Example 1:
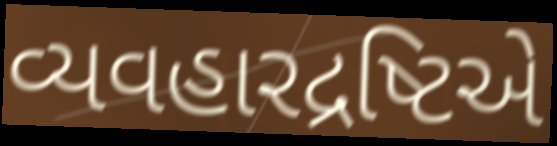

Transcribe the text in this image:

વ્યવહારદ્રષ્ટિએ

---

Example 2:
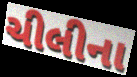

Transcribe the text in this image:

ચીલીના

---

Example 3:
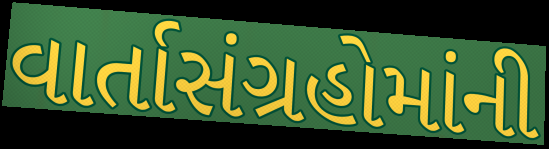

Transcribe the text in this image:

વાર્તાસંગ્રહોમાંની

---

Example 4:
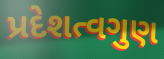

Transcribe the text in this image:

પ્રદેશત્વગુણ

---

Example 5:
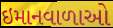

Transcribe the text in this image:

ઇમાનવાળાઓ